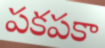
పకపకా